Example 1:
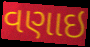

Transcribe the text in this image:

વણાઇ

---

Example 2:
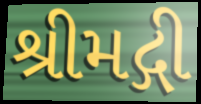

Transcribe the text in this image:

શ્રીમદ્ગી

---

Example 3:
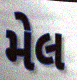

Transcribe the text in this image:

મેલ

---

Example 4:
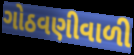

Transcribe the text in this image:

ગોઠવણીવાળી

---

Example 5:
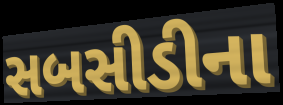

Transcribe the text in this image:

સબસીડીના